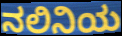
ನಲಿನಿಯ